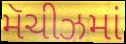
મૅચીઝમાં